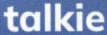
talkie